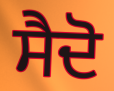
ਸੈਦੋ